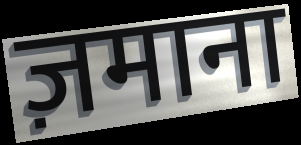
ज़माना